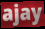
ajay